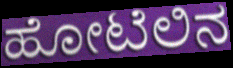
ಹೋಟೆಲಿನ